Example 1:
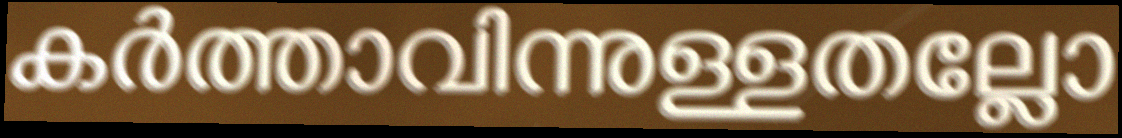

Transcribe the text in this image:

കർത്താവിന്നുള്ളതല്ലോ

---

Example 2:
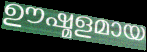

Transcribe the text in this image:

ഊഷ്മളമായ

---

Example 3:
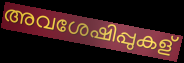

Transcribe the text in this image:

അവശേഷിപ്പുകള്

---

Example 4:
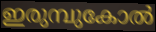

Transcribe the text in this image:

ഇരുമ്പുകോൽ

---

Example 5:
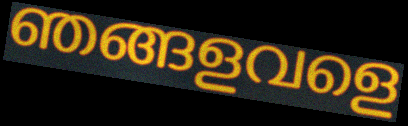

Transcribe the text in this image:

ഞങ്ങളവളെ